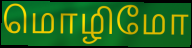
மொழிமோ